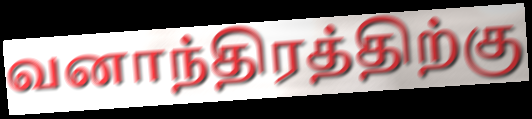
வனாந்திரத்திற்கு